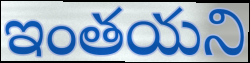
ఇంతయని